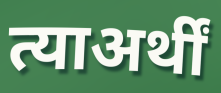
त्याअर्थीं